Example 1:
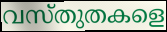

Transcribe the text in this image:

വസ്തുതകളെ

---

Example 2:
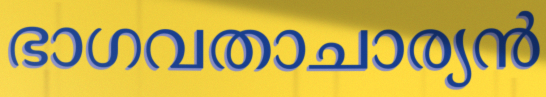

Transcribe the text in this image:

ഭാഗവതാചാര്യൻ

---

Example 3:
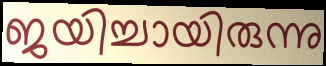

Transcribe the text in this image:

ജയിച്ചായിരുന്നു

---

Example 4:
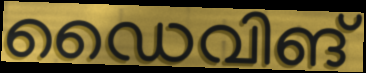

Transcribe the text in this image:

ഡൈവിങ്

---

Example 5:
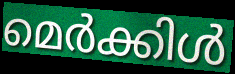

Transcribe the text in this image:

മെർക്കിൾ